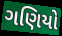
ગણિયો